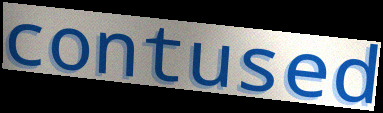
contused